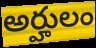
అర్హులం